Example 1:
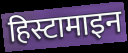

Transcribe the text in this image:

हिस्टामाइन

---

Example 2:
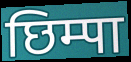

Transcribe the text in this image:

छिम्पा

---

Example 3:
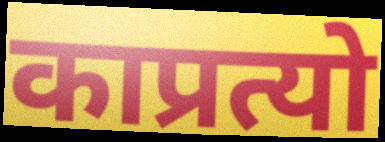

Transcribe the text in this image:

काप्रत्यो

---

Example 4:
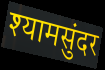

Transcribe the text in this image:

श्यामसुंदर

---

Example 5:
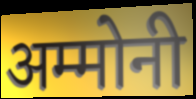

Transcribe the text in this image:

अम्मोनी